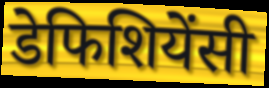
डेफिशियेंसी